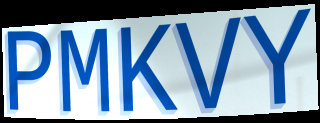
PMKVY